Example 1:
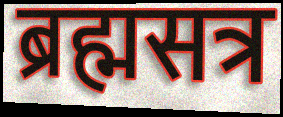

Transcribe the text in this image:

ब्रह्मसत्र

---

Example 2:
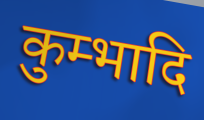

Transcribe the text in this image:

कुम्भादि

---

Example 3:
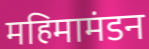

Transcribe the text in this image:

महिमामंडन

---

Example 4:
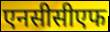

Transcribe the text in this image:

एनसीसीएफ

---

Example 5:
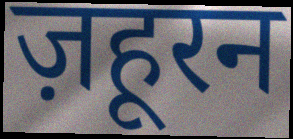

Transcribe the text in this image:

ज़हूरन